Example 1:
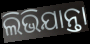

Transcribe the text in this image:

ଲିଭିଯାନ୍ତା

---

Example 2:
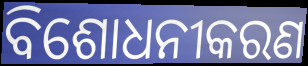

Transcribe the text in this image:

ବିଶୋଧନୀକରଣ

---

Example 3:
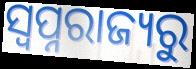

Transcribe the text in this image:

ସ୍ୱପ୍ନରାଜ୍ୟରୁ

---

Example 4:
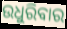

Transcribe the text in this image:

ଉଧୁରିବାର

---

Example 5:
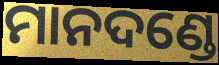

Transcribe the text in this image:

ମାନଦଣ୍ଡେ